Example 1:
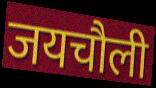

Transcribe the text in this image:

जयचौली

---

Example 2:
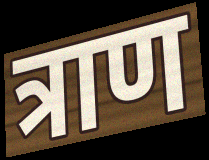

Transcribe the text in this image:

त्राण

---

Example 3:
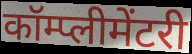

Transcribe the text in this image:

कॉम्प्लीमेंटरी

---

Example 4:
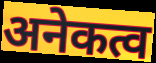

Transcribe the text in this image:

अनेकत्व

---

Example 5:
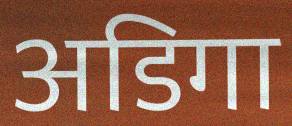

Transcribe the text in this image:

अडिगा